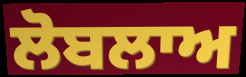
ਲੋਬਲਾਅ